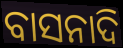
ବାସନାଦି